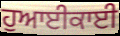
ਹੁਆਈਕਾਈ